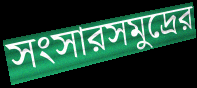
সংসারসমুদ্রের